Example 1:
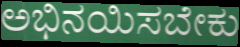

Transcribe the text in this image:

ಅಭಿನಯಿಸಬೇಕು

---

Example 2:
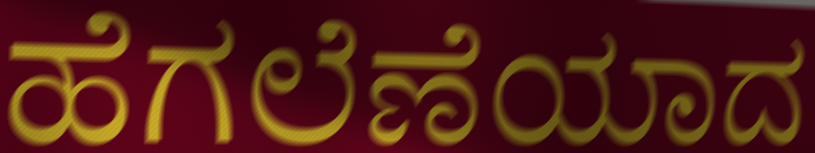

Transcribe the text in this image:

ಹೆಗಲೆಣೆಯಾದ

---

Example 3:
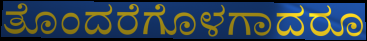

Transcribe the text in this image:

ತೊಂದರೆಗೊಳಗಾದರೂ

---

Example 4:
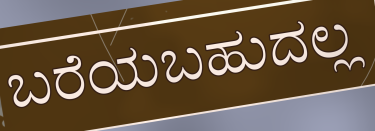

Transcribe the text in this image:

ಬರೆಯಬಹುದಲ್ಲ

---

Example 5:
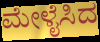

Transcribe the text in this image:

ಮೇಳೈಸಿದ